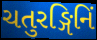
ચતુરઙ્ગિનિં